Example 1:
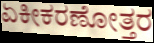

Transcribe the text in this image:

ಏಕೀಕರಣೋತ್ತರ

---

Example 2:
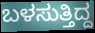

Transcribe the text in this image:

ಬಳಸುತ್ತಿದ್ದ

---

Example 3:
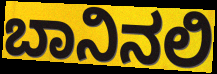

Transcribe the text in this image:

ಬಾನಿನಲಿ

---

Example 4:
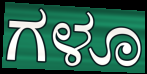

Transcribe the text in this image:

ಗಳೂ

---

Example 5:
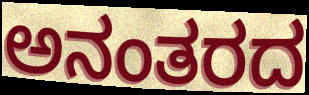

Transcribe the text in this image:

ಅನಂತರದ